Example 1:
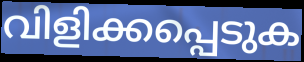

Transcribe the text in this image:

വിളിക്കപ്പെടുക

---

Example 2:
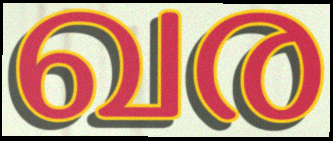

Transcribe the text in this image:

ഖര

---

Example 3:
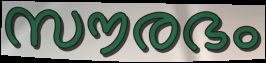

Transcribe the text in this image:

സൗരഭം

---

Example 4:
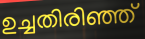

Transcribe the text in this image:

ഉച്ചതിരിഞ്ഞ്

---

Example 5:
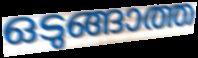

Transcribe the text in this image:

ഒടുങ്ങാത്ത